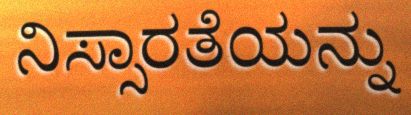
ನಿಸ್ಸಾರತೆಯನ್ನು